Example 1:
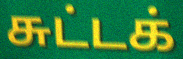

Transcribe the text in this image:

சுட்டக்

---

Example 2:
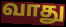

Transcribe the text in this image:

வாது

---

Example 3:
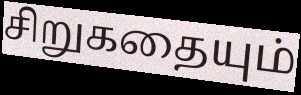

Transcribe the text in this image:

சிறுகதையும்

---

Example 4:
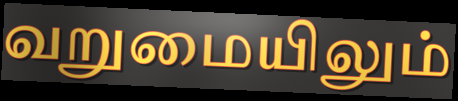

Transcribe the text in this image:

வறுமையிலும்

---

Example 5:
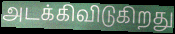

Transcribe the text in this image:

அடக்கிவிடுகிறது